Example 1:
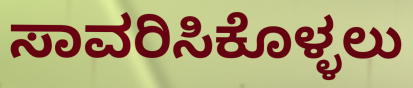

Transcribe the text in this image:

ಸಾವರಿಸಿಕೊಳ್ಳಲು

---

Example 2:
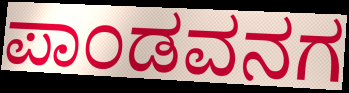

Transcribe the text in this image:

ಪಾಂಡವನಗ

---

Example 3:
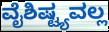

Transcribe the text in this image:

ವೈಶಿಷ್ಟ್ಯವಲ್ಲ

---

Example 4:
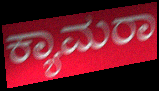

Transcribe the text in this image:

ಕ್ಯಾಮರಾ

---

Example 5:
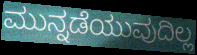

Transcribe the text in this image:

ಮುನ್ನಡೆಯುವುದಿಲ್ಲ